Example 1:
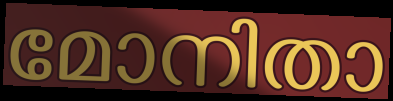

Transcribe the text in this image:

മോനിതാ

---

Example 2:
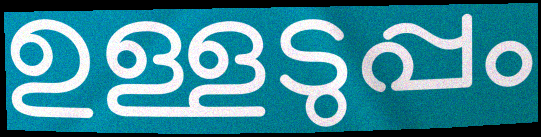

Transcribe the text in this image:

ഉള്ളടുപ്പം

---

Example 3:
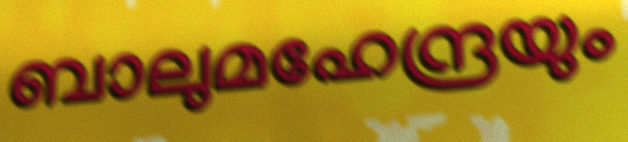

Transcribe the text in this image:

ബാലുമഹേന്ദ്രയും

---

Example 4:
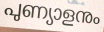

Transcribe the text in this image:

പുണ്യാളനും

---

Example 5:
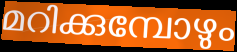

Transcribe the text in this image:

മറിക്കുമ്പോഴും